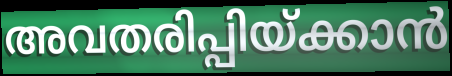
അവതരിപ്പിയ്ക്കാൻ